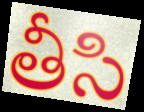
తీసి